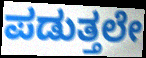
ಪಡುತ್ತಲೇ